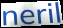
neril